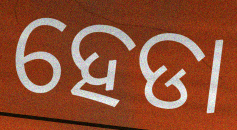
ହେଡା